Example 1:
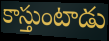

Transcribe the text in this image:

కాస్తుంటాడు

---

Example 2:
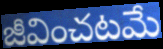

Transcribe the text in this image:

జీవించటమే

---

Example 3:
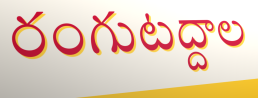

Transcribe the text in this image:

రంగుటద్దాల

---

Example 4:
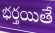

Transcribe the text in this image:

భర్తయితే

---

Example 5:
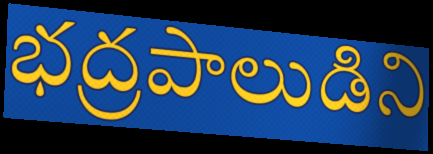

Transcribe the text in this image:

భద్రపాలుడిని